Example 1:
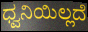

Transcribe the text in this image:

ಧ್ವನಿಯಿಲ್ಲದೆ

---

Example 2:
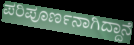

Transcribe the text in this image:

ಪರಿಪೂರ್ಣನಾಗಿದ್ದಾನೆ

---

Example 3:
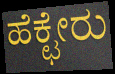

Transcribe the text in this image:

ಹೆಕ್ಟೇರು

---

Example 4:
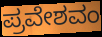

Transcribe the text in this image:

ಪ್ರವೇಶವಂ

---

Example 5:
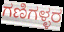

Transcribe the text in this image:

ಗಣಿಗಳ್ಳರ